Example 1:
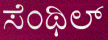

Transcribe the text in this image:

ಸೆಂಥಿಲ್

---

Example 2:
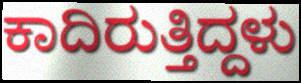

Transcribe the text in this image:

ಕಾದಿರುತ್ತಿದ್ದಳು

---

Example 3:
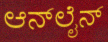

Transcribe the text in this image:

ಆನ್‌ಲೈನ್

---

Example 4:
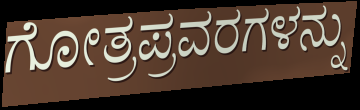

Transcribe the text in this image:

ಗೋತ್ರಪ್ರವರಗಳನ್ನು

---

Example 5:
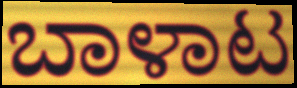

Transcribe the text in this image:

ಬಾಳಾಟ